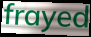
frayed